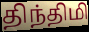
திந்திமி